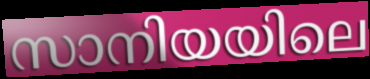
സാനിയയിലെ